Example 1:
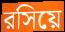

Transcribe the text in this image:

রসিয়ে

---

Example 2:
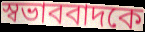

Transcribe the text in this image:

স্বভাববাদকে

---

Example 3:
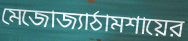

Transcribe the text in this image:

মেজোজ্যাঠামশায়ের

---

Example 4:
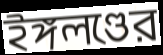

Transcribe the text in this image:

ইঙ্গলণ্ডের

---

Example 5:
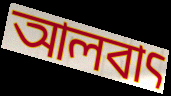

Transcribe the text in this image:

আলবাৎ